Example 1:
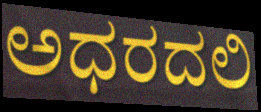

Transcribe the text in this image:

ಅಧರದಲಿ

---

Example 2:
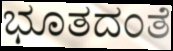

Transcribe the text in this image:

ಭೂತದಂತೆ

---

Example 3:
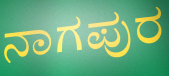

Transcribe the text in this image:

ನಾಗಪುರ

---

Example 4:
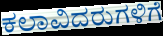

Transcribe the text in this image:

ಕಲಾವಿದರುಗಳಿಗೆ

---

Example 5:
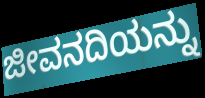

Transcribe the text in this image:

ಜೀವನದಿಯನ್ನು